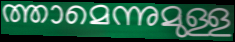
ത്താമെന്നുമുള്ള